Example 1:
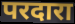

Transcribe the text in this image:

परदारा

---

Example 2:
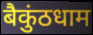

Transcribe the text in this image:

बैकुंठधाम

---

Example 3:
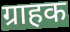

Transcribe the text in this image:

ग्राहक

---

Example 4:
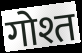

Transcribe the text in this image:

गोश्त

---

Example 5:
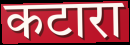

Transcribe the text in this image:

कटारा